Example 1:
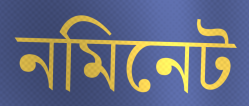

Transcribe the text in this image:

নমিনেট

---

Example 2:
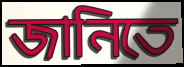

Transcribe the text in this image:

জানিতে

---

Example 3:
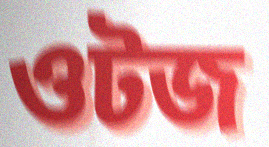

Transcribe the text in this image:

ওটজ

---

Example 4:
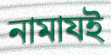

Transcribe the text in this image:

নামাযই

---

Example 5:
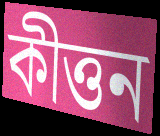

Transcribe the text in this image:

কীত্তন